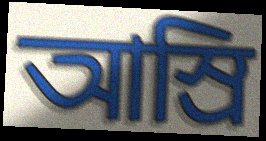
আস্রি